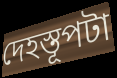
দেহস্তূপটা